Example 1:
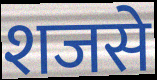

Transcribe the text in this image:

शजसे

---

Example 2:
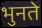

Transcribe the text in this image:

भुनते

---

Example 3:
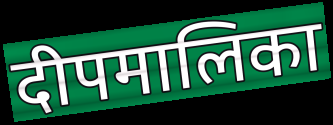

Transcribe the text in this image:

दीपमालिका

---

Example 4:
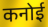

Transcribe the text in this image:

कनोई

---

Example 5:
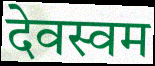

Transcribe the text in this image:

देवस्वम